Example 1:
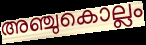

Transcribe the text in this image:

അഞ്ചുകൊല്ലം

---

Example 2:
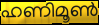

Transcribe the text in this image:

ഹണിമൂൺ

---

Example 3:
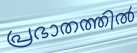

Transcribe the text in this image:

പ്രഭാതത്തിൽ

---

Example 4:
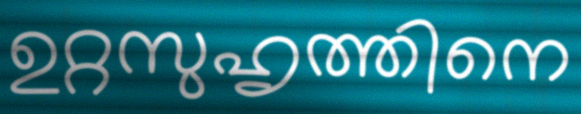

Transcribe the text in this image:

ഉറ്റസുഹൃത്തിനെ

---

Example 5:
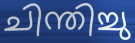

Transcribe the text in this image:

ചിന്തിച്ചു